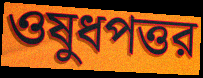
ওষুধপত্তর